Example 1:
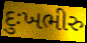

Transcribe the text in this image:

દુઃખભીરુ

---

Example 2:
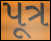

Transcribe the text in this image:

પૂત્ર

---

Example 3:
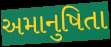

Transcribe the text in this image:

અમાનુષિતા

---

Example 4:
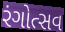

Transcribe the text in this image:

રંગોત્સવ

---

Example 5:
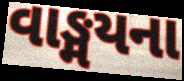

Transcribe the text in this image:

વાઙ્મયના